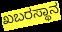
ಖಬರಸ್ಥಾನ